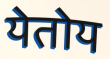
येतोय